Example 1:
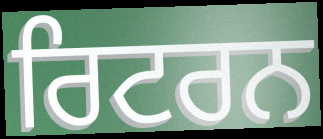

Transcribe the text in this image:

ਰਿਟਰਨ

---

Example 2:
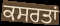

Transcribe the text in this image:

ਕਸਰਤਾਂ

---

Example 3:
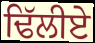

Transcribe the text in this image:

ਢਿੱਲੀਏ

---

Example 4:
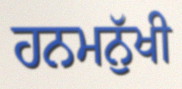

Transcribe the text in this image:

ਹਨਮਨੁੱਖੀ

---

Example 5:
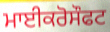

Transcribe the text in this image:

ਮਾਈਕਰੋਸੌਫਟ